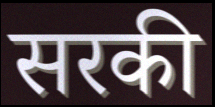
सरकी